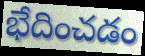
భేదించడం